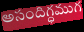
అసందిగ్ధముగ